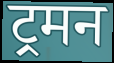
ट्रमन